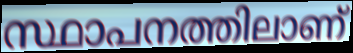
സ്ഥാപനത്തിലാണ്